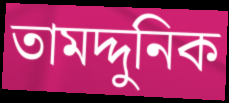
তামদ্দুনিক